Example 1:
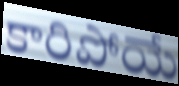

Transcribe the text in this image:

కారిపోయే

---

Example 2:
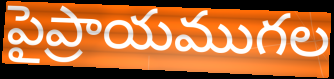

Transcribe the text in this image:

పైప్రాయముగల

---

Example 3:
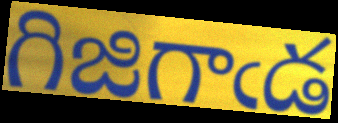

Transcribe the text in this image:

గిజిగాఁడ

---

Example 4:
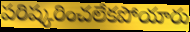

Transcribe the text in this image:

పరిష్కరించలేకపోయారు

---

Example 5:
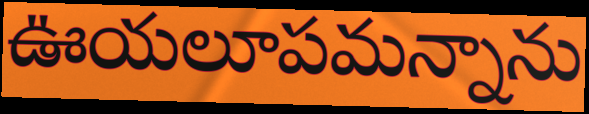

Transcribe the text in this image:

ఊయలూపమన్నాను